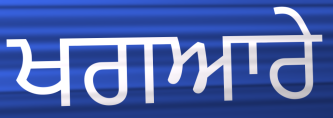
ਖਗਆਰੇ